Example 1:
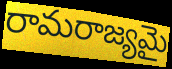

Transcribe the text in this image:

రామరాజ్యమై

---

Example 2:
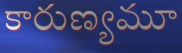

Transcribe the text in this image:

కారుణ్యమూ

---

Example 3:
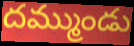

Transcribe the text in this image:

దమ్ముండు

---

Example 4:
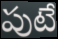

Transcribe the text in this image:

పుటే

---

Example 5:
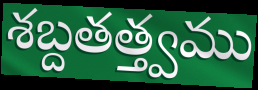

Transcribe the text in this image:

శబ్దతత్త్వము